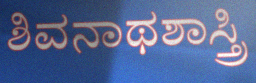
ಶಿವನಾಥಶಾಸ್ತ್ರಿ